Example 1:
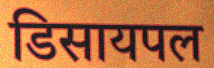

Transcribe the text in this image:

डिसायपल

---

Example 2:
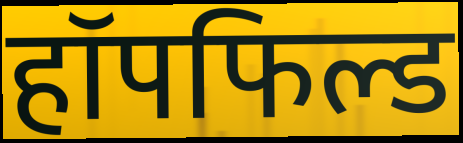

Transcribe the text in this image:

हॉपफिल्ड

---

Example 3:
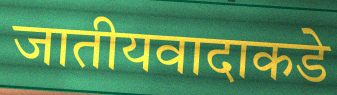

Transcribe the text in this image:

जातीयवादाकडे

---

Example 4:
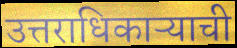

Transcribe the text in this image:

उत्तराधिकाऱ्याची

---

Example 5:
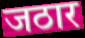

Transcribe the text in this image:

जठार